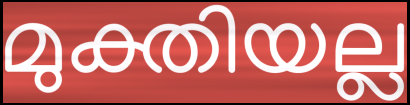
മുക്തിയല്ല